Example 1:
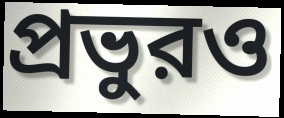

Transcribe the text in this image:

প্রভুরও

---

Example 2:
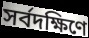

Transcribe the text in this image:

সর্বদক্ষিণে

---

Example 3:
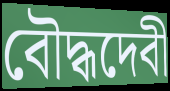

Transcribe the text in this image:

বৌদ্ধদেবী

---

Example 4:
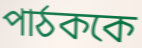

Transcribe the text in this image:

পাঠককে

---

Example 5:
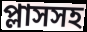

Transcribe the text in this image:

প্লাসসহ